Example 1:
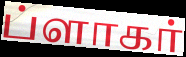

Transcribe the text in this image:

ப்ளாகர்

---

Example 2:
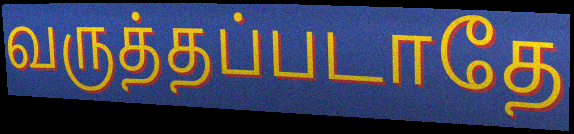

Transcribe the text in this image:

வருத்தப்படாதே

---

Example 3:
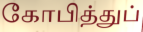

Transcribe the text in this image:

கோபித்துப்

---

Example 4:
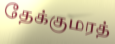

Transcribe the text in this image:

தேக்குமரத்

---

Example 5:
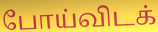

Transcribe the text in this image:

போய்விடக்